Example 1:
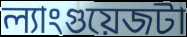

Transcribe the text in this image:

ল্যাংগুয়েজটা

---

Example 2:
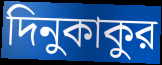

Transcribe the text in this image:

দিনুকাকুর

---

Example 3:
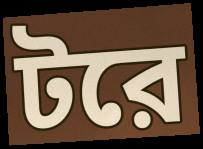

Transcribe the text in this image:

টরে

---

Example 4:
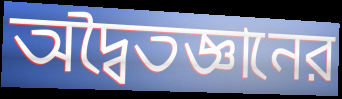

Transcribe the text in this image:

অদ্বৈতজ্ঞানের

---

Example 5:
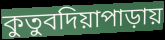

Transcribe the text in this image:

কুতুবদিয়াপাড়ায়